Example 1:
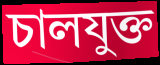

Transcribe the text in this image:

চালযুক্ত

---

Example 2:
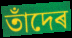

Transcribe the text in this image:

তাঁদেৰ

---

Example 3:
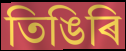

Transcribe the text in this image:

তিঙিৰি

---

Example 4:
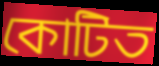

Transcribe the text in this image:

কোটিত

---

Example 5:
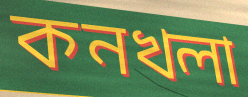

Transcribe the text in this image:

কনখলা